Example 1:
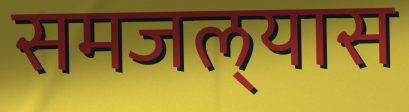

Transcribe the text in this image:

समजल्यास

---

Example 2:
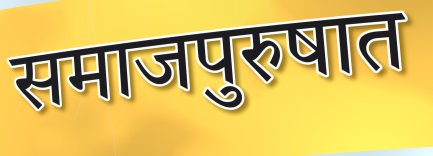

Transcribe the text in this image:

समाजपुरुषात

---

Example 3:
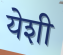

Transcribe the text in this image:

येशी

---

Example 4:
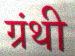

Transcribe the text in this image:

ग्रंथी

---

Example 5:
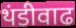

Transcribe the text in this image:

थंडीवाढ